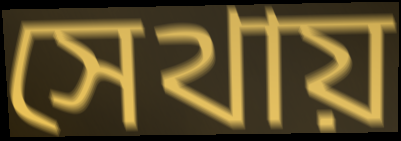
সেথায়